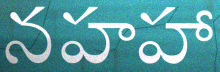
నహహా